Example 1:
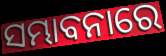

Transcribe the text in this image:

ସମ୍ଭାବନାରେ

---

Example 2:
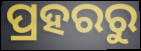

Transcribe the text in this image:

ପ୍ରହରରୁ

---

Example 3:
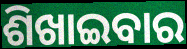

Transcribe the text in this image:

ଶିଖାଇବାର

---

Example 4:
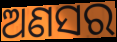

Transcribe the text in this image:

ଅଣସର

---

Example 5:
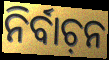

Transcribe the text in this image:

ନିର୍ବାଚ଼ନ